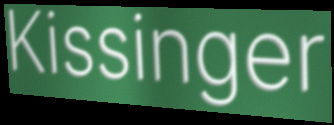
Kissinger